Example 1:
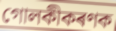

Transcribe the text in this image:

গোলকীকৰণক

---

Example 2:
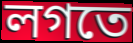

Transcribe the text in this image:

লগতে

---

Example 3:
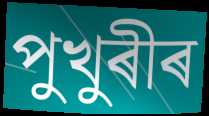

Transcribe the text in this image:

পুখুৰীৰ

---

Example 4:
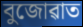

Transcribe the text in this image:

বুজোৱাত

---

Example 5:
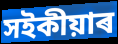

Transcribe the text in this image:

সইকীয়াৰ